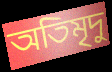
অতিমৃদু